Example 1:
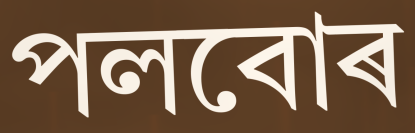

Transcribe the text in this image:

পলবোৰ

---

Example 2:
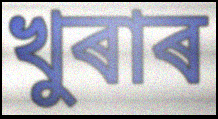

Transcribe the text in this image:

খুৰাৰ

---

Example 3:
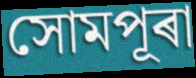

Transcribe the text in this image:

সোমপূৰা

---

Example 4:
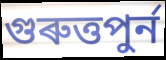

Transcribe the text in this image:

গুৰুত্তপুৰ্ন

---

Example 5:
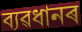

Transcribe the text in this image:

ব্যৱধানৰ